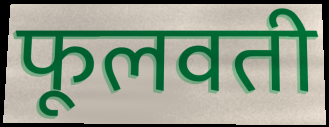
फूलवती